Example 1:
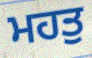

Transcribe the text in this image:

ਮਹਤੁ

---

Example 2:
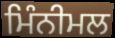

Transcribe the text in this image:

ਮਿੰਨੀਮਲ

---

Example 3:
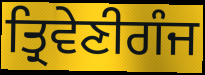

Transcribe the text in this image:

ਤ੍ਰਿਵੇਣੀਗੰਜ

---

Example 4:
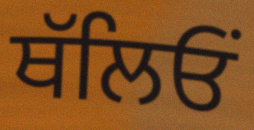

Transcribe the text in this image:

ਥੱਲਿਓਂ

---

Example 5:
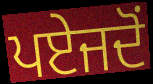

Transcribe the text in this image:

ਪਏਜਦੋਂ